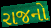
રાજનો